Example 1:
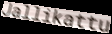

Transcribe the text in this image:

Jallikattu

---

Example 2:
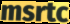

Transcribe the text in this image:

msrtc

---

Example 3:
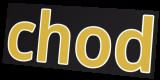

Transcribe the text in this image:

chod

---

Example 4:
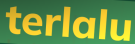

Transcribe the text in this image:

terlalu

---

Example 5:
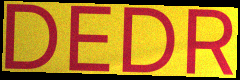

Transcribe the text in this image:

DEDR